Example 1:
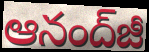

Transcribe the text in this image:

ఆనంద్‌జీ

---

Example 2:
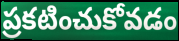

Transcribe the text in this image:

ప్రకటించుకోవడం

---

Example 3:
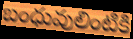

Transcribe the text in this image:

బంధువులింటికి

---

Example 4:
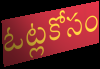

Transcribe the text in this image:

ఓట్లకోసం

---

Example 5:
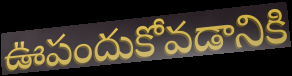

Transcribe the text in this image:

ఊపందుకోవడానికి